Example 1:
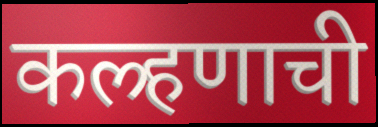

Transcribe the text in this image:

कल्हणाची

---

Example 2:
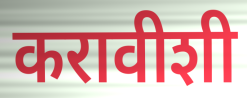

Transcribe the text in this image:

करावीशी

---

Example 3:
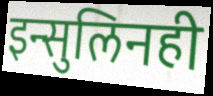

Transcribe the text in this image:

इन्सुलिनही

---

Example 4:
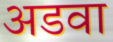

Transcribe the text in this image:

अडवा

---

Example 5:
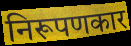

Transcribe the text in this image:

निरूपणकार